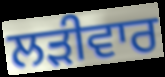
ਲੜੀਵਾਰ